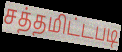
சத்தமிட்டபடி